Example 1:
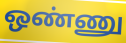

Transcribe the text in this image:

ஒண்ணு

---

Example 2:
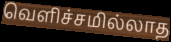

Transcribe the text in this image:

வெளிச்சமில்லாத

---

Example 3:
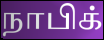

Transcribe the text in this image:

நாபிக்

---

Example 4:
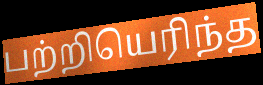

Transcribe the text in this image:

பற்றியெரிந்த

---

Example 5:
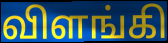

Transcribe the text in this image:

விளங்கி